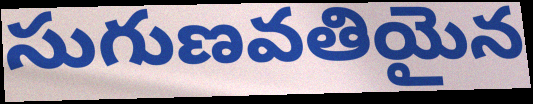
సుగుణవతియైన